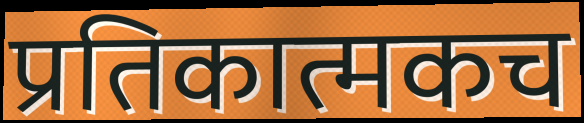
प्रतिकात्मकच